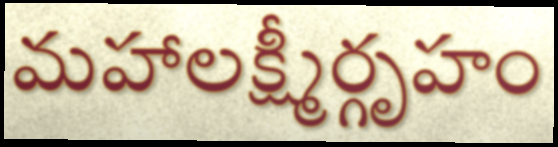
మహాలక్ష్మీర్గృహం